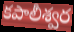
కపాలీశ్వర